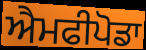
ਐਮਫੀਪੋਡਾ